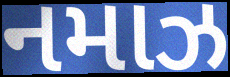
નમાઝ